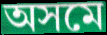
অসমে